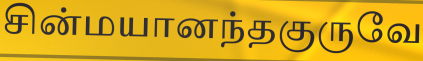
சின்மயானந்தகுருவே